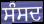
ਸੰਸਦ